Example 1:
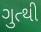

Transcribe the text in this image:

ગુત્થી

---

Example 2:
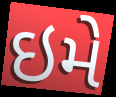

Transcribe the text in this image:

ઇમે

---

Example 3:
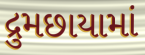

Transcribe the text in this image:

દ્રુમછાયામાં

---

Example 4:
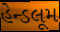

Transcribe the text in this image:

હેન્ડલૂમ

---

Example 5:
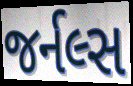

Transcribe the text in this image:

જર્નલ્સ